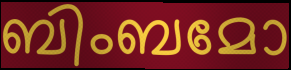
ബിംബമോ